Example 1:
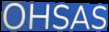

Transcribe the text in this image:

OHSAS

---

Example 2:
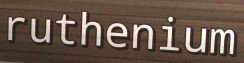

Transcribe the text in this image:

ruthenium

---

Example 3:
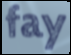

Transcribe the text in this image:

fay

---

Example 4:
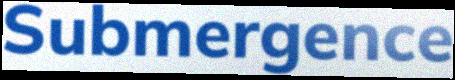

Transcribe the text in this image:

Submergence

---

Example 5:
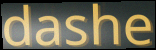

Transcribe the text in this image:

dashe